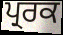
ਪ੍ਰਰਕ